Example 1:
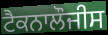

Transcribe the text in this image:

ਟੈਕਨਾਲੌਜੀਸ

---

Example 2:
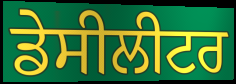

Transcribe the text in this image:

ਡੇਸੀਲੀਟਰ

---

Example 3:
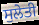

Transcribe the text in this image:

ਸੁਲੇਤੀ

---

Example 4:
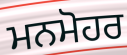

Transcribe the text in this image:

ਮਨਮੋਹਰ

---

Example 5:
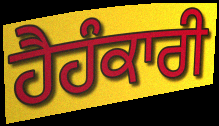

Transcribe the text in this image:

ਹੈਹੰਕਾਰੀ